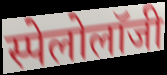
स्पेलोलॉजी